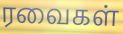
ரவைகள்